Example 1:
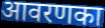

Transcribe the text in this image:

आवरणका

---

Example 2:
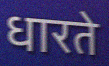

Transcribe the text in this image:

धारते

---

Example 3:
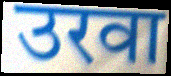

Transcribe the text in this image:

उरवा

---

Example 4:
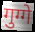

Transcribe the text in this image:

गुग्गे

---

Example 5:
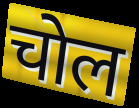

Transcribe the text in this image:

चोल